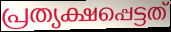
പ്രത്യക്ഷപ്പെട്ടത്